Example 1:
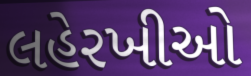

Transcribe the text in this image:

લહેરખીઓ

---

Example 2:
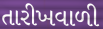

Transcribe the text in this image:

તારીખવાળી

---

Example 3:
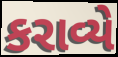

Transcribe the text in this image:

કરાવ્યે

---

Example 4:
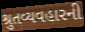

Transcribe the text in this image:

શ્રુતવ્યવહારની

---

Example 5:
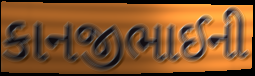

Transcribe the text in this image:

કાનજીભાઈની